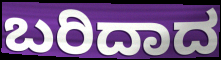
ಬರಿದಾದ